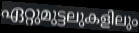
ഏറ്റുമുട്ടലുകളിലും